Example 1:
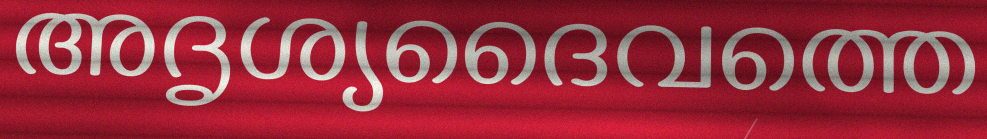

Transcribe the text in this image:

അദൃശ്യദൈവത്തെ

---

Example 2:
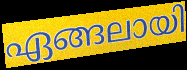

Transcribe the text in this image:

ഏങ്ങലായി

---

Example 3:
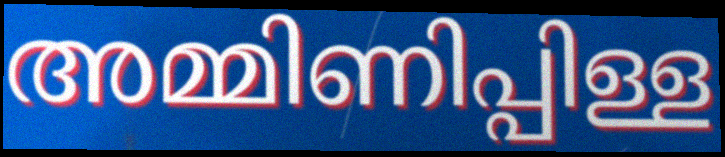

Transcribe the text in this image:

അമ്മിണിപ്പിള്ള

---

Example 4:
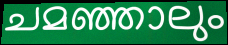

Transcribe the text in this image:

ചമഞ്ഞാലും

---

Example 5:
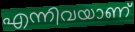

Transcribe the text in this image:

എന്നിവയാണ്